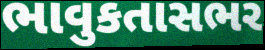
ભાવુકતાસભર